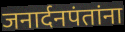
जनार्दनपंतांना